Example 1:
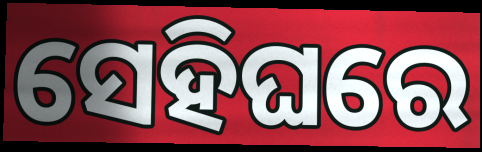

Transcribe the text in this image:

ସେହିଘରେ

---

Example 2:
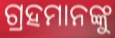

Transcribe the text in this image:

ଗ୍ରହମାନଙ୍କୁ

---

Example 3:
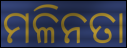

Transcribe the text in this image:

ମଳିନତା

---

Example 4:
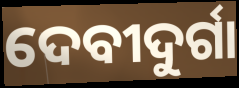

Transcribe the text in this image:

ଦେବୀଦୁର୍ଗା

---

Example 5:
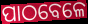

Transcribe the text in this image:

ପାଠବେଳେ